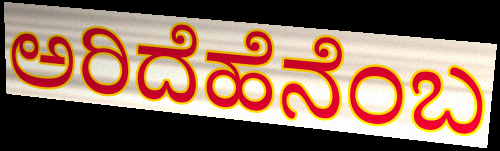
ಅರಿದೆಹೆನೆಂಬ